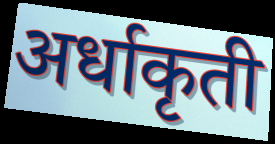
अर्धाकृती